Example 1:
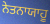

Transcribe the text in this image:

ਨੇਤਨਾਯਾਹੂ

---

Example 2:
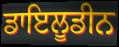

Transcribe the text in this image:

ਡਾਇਲੂਡੀਨ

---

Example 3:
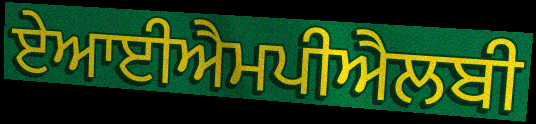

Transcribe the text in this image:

ਏਆਈਐਮਪੀਐਲਬੀ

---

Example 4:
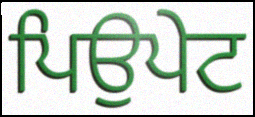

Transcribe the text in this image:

ਪਿਉਪੇਟ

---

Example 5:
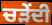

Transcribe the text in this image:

ਚੜੇਂਦੀ